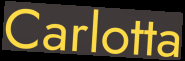
Carlotta